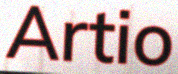
Artio